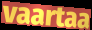
vaartaa